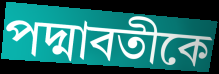
পদ্মাবতীকে